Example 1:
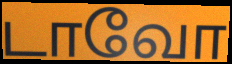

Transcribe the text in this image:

டாவோ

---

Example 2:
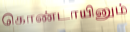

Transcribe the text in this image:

கொண்டாயினும்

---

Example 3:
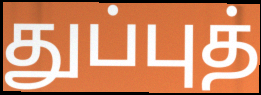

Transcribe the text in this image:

துப்புத்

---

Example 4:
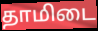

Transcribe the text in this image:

தாமிடை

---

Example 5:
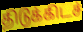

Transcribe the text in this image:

திடுக்கிடச்